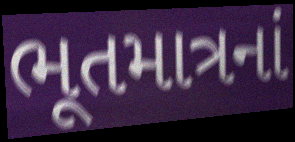
ભૂતમાત્રનાં